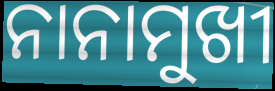
ନାନାମୁଖୀ